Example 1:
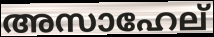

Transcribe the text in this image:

അസാഹേല്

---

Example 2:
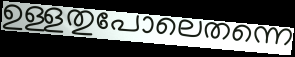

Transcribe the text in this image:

ഉള്ളതുപോലെതന്നെ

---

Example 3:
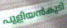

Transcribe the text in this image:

പുളിയൻകുടി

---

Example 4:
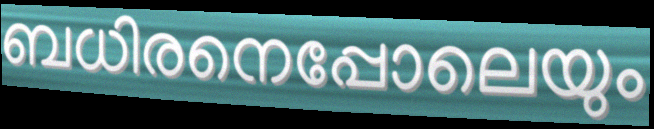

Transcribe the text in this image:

ബധിരനെപ്പോലെയും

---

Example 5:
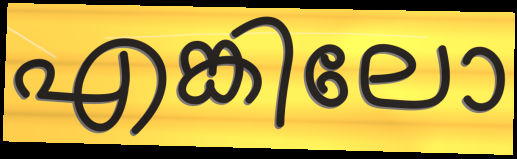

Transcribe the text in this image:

എങ്കിലോ